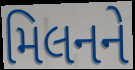
મિલનને